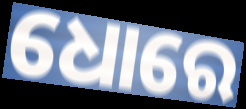
ଧୋରେ